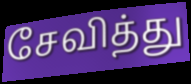
சேவித்து